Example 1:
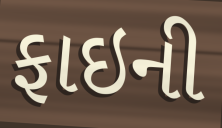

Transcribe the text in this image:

ફાઇની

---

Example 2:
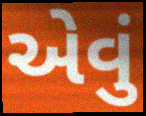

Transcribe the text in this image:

એવું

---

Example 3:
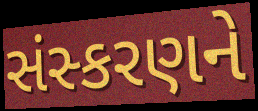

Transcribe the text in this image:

સંસ્કરણને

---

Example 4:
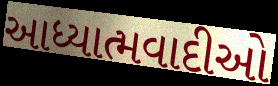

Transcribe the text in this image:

આધ્યાત્મવાદીઓ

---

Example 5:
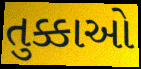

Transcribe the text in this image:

તુક્કાઓ